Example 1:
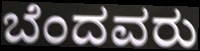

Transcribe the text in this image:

ಬೆಂದವರು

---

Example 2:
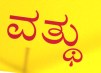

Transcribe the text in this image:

ವತ್ಥು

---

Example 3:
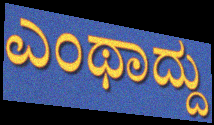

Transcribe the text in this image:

ಎಂಥಾದ್ದು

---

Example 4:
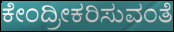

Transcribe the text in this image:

ಕೇಂದ್ರೀಕರಿಸುವಂತೆ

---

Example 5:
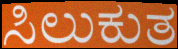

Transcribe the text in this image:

ಸಿಲುಕುತ